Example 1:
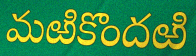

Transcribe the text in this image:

మఱికొందఱి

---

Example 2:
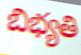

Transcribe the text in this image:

బిభ్యతి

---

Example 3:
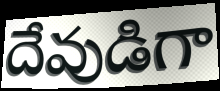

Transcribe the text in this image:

దేవుడిగా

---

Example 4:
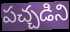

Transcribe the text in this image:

పచ్చడిని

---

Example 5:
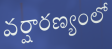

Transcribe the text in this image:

వర్షారణ్యంలో